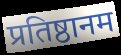
प्रतिष्ठानम